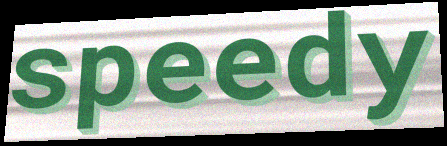
speedy